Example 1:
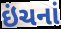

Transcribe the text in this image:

ઇંચનાં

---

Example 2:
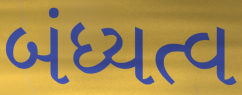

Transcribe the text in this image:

બંધ્યત્વ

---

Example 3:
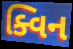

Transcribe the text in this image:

ક્વિન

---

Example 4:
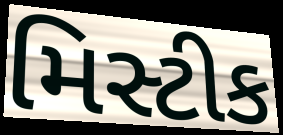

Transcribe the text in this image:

મિસ્ટીક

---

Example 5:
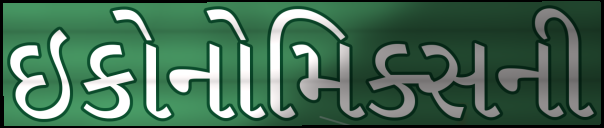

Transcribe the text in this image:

ઇકોનોમિક્સની